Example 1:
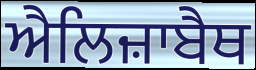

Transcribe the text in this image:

ਐਲਿਜ਼ਾਬੈਥ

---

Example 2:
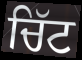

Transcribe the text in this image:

ਚਿੱਟ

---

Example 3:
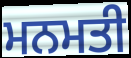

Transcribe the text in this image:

ਮਨਮਤੀ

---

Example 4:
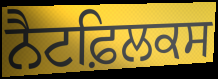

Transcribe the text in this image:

ਨੈਟਫ਼ਿਲਕਸ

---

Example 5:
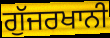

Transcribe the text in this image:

ਗੁੱਜਰਖਾਨੀ